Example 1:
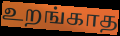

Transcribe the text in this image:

உறங்காத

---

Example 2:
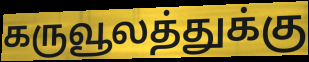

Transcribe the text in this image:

கருவூலத்துக்கு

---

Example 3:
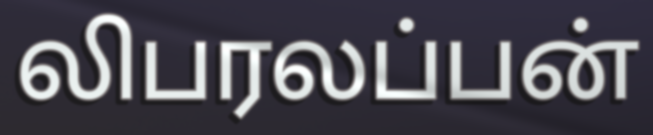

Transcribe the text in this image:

லிபரலப்பன்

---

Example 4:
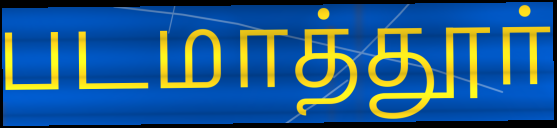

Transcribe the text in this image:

படமாத்தூர்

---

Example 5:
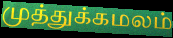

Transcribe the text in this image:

முத்துக்கமலம்